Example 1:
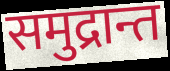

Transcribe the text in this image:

समुद्रान्त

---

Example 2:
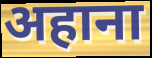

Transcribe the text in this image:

अहाना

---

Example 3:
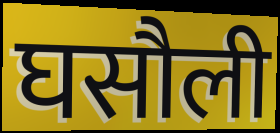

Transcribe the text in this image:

घसौली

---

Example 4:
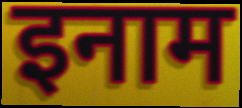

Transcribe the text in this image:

इनाम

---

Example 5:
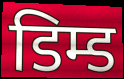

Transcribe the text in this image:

डिम्ड